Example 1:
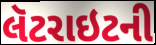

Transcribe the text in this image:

લૅટરાઇટની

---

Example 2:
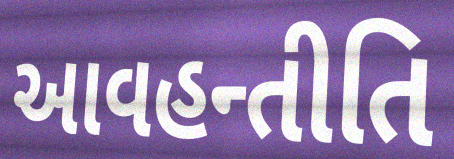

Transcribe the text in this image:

આવહન્તીતિ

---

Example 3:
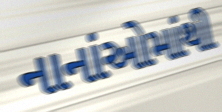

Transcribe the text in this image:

નાનાંઓમાંથી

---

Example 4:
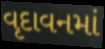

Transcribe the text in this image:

વૃદાવનમાં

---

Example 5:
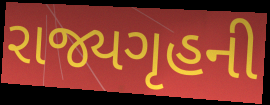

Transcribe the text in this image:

રાજ્યગૃહની